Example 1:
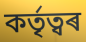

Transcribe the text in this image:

কৰ্তৃত্বৰ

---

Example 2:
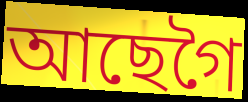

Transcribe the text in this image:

আছেগৈ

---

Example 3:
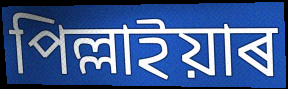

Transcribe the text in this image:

পিল্লাইয়াৰ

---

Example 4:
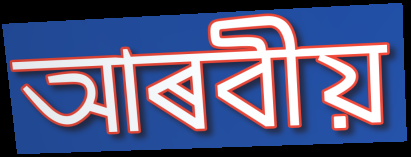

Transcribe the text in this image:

আৰবীয়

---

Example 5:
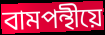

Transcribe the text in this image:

বামপন্থীয়ে